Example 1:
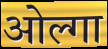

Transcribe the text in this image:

ओल्गा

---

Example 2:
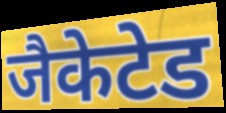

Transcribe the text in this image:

जैकेटेड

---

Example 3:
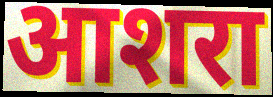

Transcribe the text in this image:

आशरा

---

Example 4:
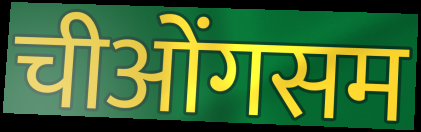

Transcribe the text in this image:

चीओंगसम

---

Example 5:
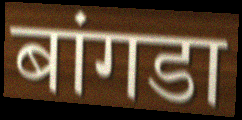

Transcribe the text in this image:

बांगडा